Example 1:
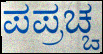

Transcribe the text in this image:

ಪಪ್ರಚ್ಚ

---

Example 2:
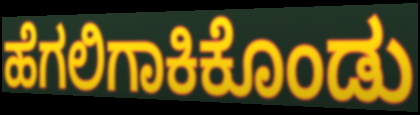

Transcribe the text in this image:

ಹೆಗಲಿಗಾಕಿಕೊಂಡು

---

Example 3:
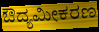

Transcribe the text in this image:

ಔದ್ಯಮೀಕರಣ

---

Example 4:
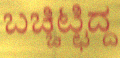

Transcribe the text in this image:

ಬಚ್ಚಿಟ್ಟಿದ್ದ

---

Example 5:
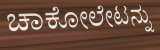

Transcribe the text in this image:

ಚಾಕೋಲೇಟನ್ನು